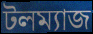
টলম্যাজ